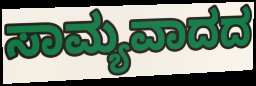
ಸಾಮ್ಯವಾದದ